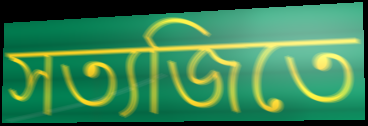
সত্যজিতে